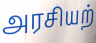
அரசியற்